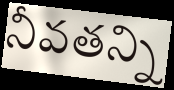
నీవతన్ని